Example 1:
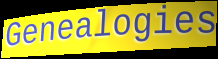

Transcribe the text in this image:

Genealogies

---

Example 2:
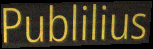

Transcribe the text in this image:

Publilius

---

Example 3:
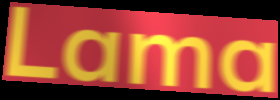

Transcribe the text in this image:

Lama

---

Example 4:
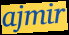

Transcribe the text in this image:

ajmir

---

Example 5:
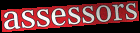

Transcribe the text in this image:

assessors